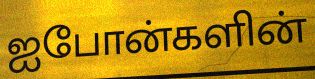
ஐபோன்களின்